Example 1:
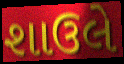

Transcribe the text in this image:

શાઉલે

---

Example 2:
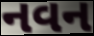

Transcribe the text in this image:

નવન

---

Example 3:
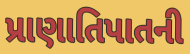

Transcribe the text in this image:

પ્રાણાતિપાતની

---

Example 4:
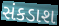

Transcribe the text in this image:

સંકડાશ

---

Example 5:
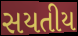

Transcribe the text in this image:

સયતીય